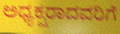
ಅಧ್ಯಕ್ಷರಾದವರಿಗೆ